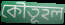
কৌতূহল